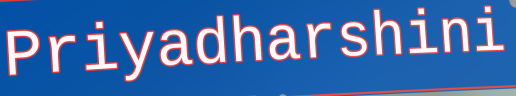
Priyadharshini